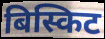
बिस्किट